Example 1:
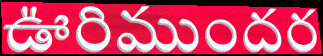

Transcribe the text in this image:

ఊరిముందర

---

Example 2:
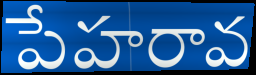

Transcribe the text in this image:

పేహరావ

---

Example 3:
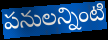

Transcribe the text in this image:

పనులన్నింటి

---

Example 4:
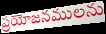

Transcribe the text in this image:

ప్రయోజనములను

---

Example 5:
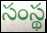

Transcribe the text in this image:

సంస్థ